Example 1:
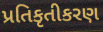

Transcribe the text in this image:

પ્રતિકૃતીકરણ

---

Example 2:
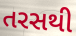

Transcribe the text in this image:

તરસથી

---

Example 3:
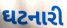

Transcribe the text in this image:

ઘટનારી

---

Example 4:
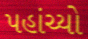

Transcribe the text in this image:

પહાંચ્યો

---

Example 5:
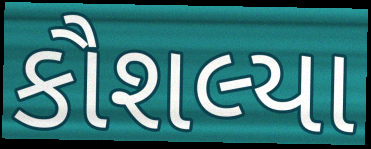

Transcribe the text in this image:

કૌશલ્યા